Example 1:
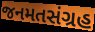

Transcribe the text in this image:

જનમતસંગ્રહ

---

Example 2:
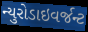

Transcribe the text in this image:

ન્યુરોડાઇવર્જન્ટ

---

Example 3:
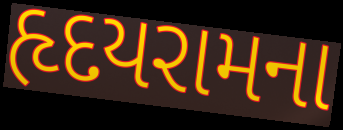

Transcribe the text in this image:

હૃદયરામના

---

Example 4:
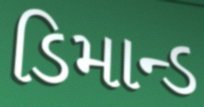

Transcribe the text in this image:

ડિમાન્ડ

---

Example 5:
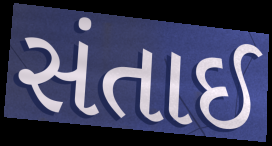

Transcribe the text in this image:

સંતાઈ